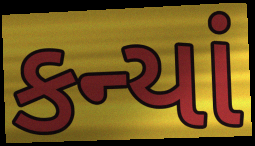
કન્યાં